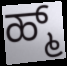
ಹ್ಮ್